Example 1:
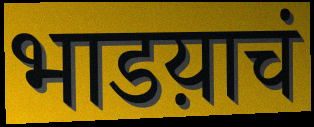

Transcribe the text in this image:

भाडय़ाचं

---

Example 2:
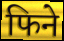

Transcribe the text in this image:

फिने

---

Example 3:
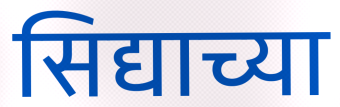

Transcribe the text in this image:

सिद्याच्या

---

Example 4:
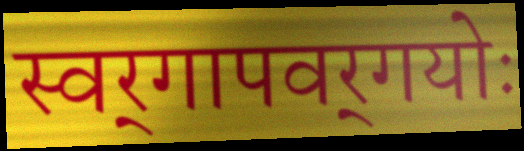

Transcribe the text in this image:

स्वर्गापवर्गयोः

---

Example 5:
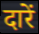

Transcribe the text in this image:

दारें